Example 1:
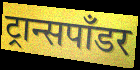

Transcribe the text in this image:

ट्रान्सपाँडर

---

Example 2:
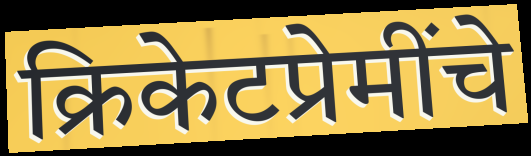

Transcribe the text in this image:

क्रिकेटप्रेमींचे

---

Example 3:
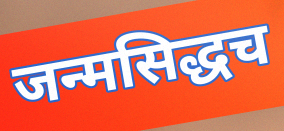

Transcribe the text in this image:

जन्मसिद्धच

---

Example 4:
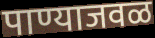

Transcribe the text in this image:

पाण्याजवळ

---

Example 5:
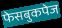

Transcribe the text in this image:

फेसबुकपेज